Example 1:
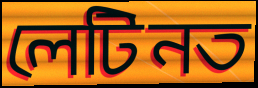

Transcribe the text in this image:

লেটিনত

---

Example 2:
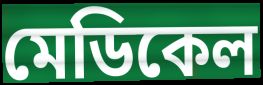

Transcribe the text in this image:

মেডিকেল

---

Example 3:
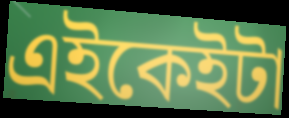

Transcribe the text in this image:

এইকেইটা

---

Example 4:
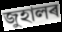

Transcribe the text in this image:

জুহালৰ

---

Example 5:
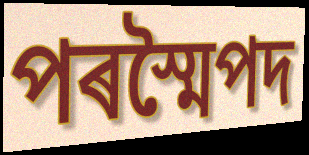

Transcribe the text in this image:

পৰস্মৈপদ